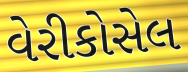
વેરીકોસેલ